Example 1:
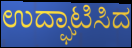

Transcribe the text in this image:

ಉದ್ಘಾಟಿಸಿದ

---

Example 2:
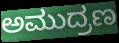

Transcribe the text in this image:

ಅಮುದ್ರಣ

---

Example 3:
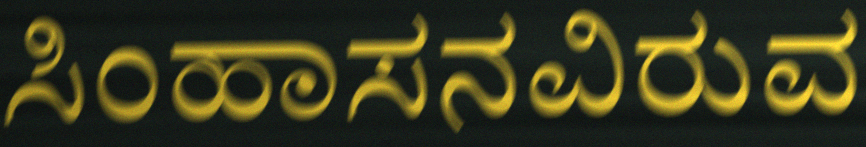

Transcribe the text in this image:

ಸಿಂಹಾಸನವಿರುವ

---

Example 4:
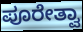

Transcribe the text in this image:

ಪೂರೇತ್ವಾ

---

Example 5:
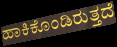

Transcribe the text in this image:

ಹಾಕಿಕೊಂಡಿರುತ್ತದೆ